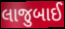
લાજુબાઈ